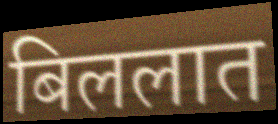
बिललात